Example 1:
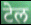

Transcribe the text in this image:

टेल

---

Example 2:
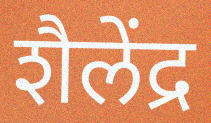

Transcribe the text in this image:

शैलेंद्र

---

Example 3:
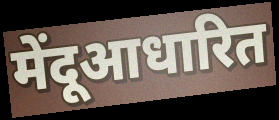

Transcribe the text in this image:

मेंदूआधारित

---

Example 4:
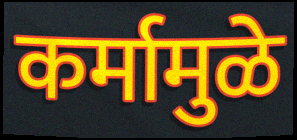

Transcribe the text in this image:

कर्मामुळे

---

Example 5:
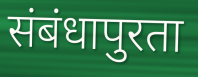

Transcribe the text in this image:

संबंधापुरता